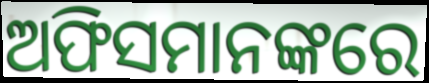
ଅଫିସମାନଙ୍କରେ